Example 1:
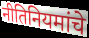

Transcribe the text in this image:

नीतिनियमांचे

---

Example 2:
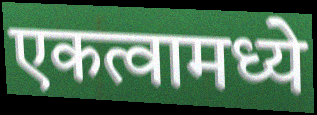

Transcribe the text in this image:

एकत्वामध्ये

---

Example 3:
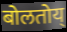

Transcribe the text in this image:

बोलतोय्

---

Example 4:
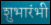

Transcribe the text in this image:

शुभारंभी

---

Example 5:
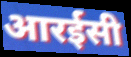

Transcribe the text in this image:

आरईसी